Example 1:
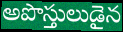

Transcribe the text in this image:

అపొస్తులుడైన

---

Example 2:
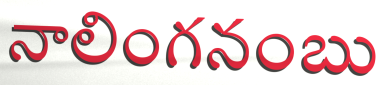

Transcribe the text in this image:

నాలింగనంబు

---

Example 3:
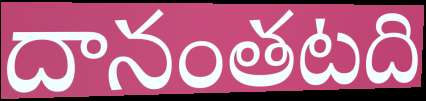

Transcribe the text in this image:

దానంతటది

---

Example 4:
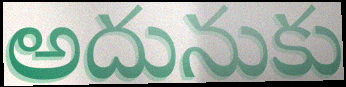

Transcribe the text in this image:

అదునుకు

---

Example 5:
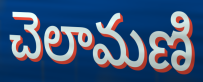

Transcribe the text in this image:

చెలామణి